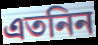
এতনিন